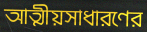
আত্মীয়সাধারণের